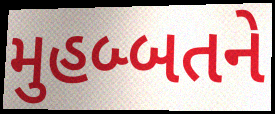
મુહબ્બતને